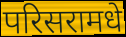
परिसरामधे